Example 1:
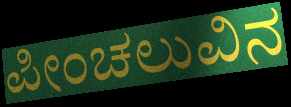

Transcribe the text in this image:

ಪೀಂಚಲುವಿನ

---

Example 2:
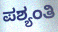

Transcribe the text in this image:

ಪಶ್ಯಂತಿ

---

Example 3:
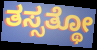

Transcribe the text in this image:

ತಸ್ಸತ್ಥೋ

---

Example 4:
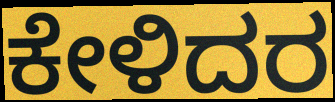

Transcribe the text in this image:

ಕೇಳಿದರ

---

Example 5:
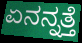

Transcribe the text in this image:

ಏನನ್ನತ್ತೆ